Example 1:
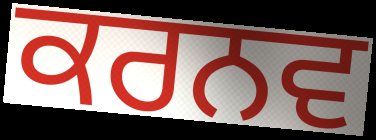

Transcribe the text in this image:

ਕਰਨਵ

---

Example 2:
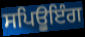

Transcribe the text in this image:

ਸਪਿਊਇੰਗ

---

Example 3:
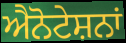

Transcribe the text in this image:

ਐਨੋਟੇਸ਼ਨਾਂ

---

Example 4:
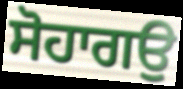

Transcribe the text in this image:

ਸੋਹਾਗਉ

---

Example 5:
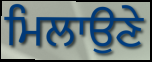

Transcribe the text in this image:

ਮਿਲਾਉਣੇ